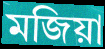
মজিয়া